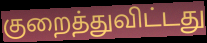
குறைத்துவிட்டது